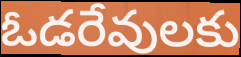
ఓడరేవులకు